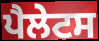
ਪੈਲੇਟਸ